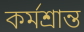
কর্মশ্রান্ত